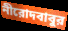
নীরোদবাবুর